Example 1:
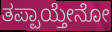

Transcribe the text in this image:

ತಪ್ಪಾಯ್ತೇನೋ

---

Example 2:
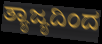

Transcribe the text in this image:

ತ್ಯಾಜ್ಯದಿಂದ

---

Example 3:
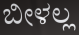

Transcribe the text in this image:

ಬೀಳಲ್ಲ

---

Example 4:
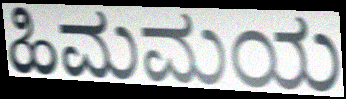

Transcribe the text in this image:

ಹಿಮಮಯ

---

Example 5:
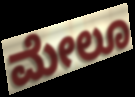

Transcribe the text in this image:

ಮೇಲೂ